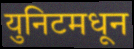
युनिटमधून